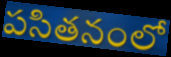
పసితనంలో